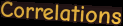
Correlations